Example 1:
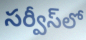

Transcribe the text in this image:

సర్వీస్‌లో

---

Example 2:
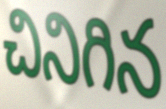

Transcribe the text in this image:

చినిగిన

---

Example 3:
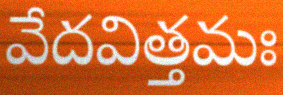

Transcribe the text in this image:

వేదవిత్తమః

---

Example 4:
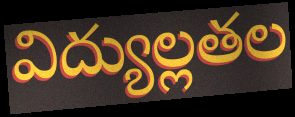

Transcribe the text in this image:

విద్యుల్లతల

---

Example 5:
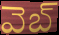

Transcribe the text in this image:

వెబ్